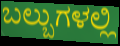
ಬಲ್ಬುಗಳಲ್ಲಿ